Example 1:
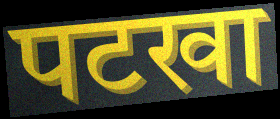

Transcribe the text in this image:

पटखा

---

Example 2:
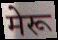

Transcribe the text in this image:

मेरू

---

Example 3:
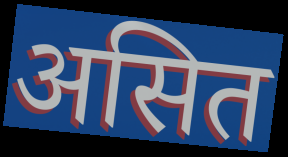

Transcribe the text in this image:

असित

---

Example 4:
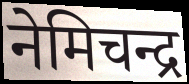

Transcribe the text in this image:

नेमिचन्द्र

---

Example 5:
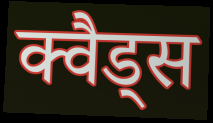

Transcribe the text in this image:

क्वैड्स